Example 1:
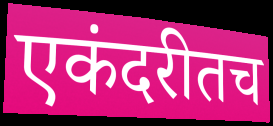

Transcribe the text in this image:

एकंदरीतच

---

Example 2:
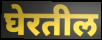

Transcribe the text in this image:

घेरतील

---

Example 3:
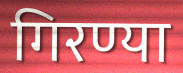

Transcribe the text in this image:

गिरण्या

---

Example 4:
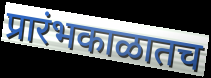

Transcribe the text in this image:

प्रारंभकाळातच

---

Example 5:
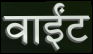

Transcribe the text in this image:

वाईंट